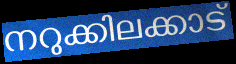
നറുക്കിലക്കാട്